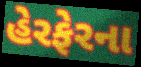
હેરફેરના